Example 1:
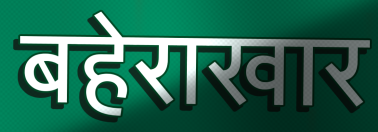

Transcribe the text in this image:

बहेराखार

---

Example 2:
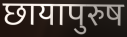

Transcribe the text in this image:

छायापुरुष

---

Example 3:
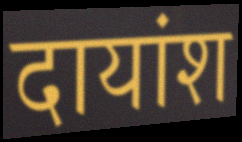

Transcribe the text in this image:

दायांश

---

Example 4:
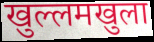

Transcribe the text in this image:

खुल्लमखुला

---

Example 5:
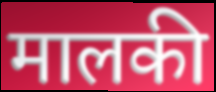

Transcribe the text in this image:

मालकी